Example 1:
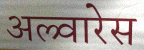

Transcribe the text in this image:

अल्वारेस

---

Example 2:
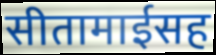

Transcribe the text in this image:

सीतामाईसह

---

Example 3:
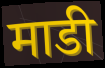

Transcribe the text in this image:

माडी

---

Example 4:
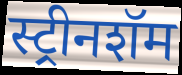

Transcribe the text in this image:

स्ट्रीनशॅम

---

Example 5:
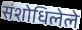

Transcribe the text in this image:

संशोधिलेले